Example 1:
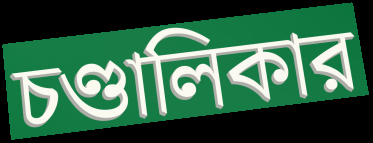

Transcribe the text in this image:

চণ্ডালিকার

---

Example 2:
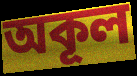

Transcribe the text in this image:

অকূল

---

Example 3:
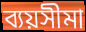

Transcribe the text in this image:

ব্যয়সীমা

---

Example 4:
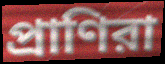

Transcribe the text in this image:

প্রাণিরা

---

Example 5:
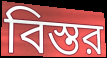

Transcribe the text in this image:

বিস্তর